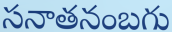
సనాతనంబగు